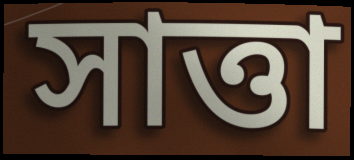
সাত্তা